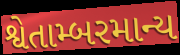
શ્વેતામ્બરમાન્ય